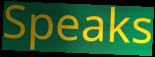
Speaks